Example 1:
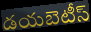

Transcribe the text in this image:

డయబెటీస్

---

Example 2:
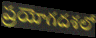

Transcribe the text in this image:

ప్రయోగదశలో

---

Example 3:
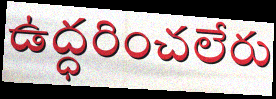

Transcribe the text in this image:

ఉద్ధరించలేరు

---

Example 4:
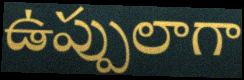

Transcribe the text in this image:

ఉప్పులాగా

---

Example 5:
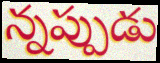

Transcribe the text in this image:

న్నప్పుడు